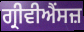
ਗ੍ਰੀਵੀਐਂਸਜ਼